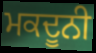
ਮਕਦੂਨੀ